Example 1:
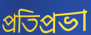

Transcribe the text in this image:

প্রতিপ্রভা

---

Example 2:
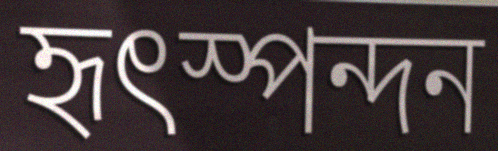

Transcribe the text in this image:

হৃৎস্পন্দন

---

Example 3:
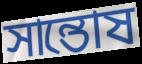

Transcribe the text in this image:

সান্তোষ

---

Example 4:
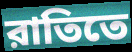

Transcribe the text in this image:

রাতিতে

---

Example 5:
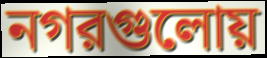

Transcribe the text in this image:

নগরগুলোয়